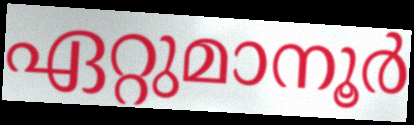
ഏറ്റുമാനൂർ